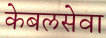
केबलसेवा